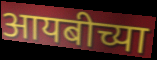
आयबीच्या